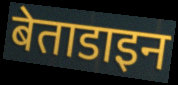
बेताडाइन